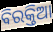
ବିରକ୍ତିଆ